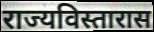
राज्यविस्तारास